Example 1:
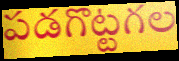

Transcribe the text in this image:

పడగొట్టగల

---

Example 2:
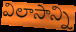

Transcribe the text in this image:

విలాసాన్ని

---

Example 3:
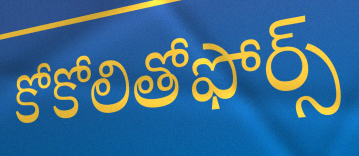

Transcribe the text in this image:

కోకోలితోఫోర్స్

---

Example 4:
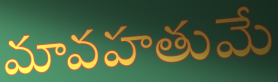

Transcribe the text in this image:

మావహతుమే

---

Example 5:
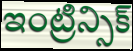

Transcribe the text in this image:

ఇంట్రిన్సిక్